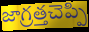
జాగ్రత్తచెప్పి